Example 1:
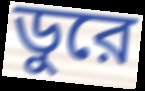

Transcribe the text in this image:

ডুরে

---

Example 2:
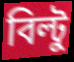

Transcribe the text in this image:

বিল্টু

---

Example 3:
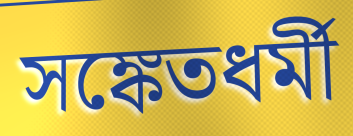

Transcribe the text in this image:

সঙ্কেতধর্মী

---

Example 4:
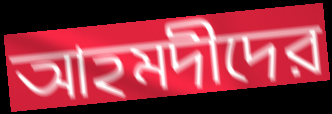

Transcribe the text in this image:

আহমদীদের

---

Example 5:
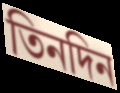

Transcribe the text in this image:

তিনদিন